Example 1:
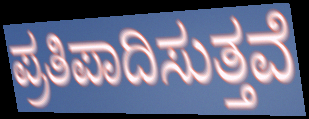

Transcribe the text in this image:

ಪ್ರತಿಪಾದಿಸುತ್ತವೆ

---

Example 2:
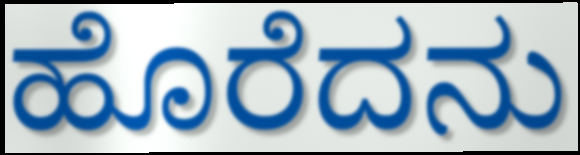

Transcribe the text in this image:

ಹೊರೆದನು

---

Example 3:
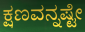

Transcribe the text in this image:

ಕ್ಷಣವನ್ನಷ್ಟೇ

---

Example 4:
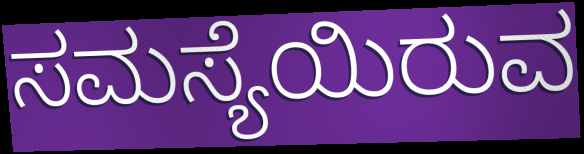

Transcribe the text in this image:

ಸಮಸ್ಯೆಯಿರುವ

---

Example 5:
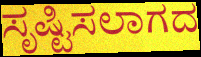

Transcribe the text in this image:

ಸೃಷ್ಟಿಸಲಾಗದ